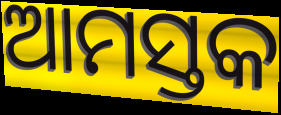
ଆମସ୍ତକ